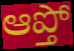
ఆప్తో